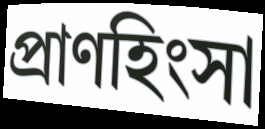
প্রাণহিংসা